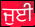
ਜੁਈ